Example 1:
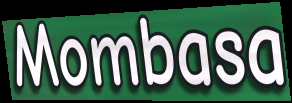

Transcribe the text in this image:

Mombasa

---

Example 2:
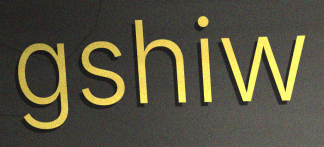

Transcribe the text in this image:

gshiw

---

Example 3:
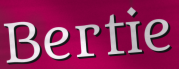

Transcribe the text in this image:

Bertie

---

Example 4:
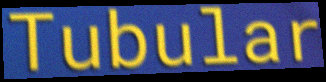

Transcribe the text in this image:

Tubular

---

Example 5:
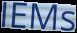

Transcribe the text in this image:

IEMs